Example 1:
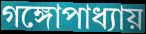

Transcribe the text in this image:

গঙ্গোপাধ্যায়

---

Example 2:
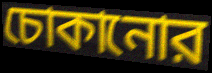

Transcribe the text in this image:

চোকানোর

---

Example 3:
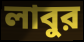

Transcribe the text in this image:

লাবুর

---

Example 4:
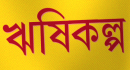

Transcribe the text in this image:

ঋষিকল্প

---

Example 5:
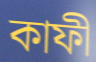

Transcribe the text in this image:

কাফী